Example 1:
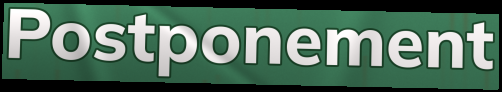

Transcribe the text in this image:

Postponement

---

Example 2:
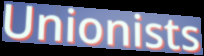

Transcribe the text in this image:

Unionists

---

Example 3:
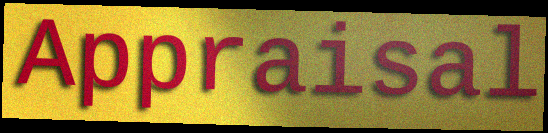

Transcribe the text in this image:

Appraisal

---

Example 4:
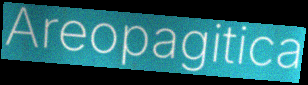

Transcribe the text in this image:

Areopagitica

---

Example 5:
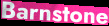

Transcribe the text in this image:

Barnstone